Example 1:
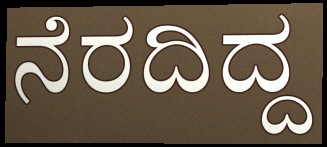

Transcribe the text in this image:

ನೆರದಿದ್ದ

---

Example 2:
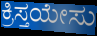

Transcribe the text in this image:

ಕ್ರಿಸ್ತಯೇಸು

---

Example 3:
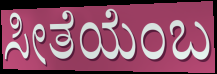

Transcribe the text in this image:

ಸೀತೆಯೆಂಬ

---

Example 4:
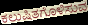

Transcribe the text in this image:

ಕಲುಷಿತಗೊಳಿಸುವ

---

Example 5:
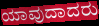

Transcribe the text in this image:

ಯಾವುದಾದರು